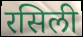
रसिली